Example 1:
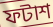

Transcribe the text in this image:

ফটাশ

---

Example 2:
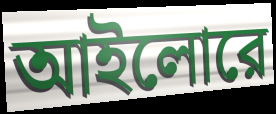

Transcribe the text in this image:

আইলোরে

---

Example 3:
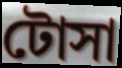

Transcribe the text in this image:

টোসা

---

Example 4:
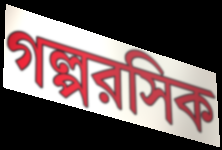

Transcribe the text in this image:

গল্পরসিক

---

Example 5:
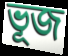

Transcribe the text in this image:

ভূজ